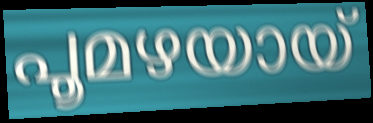
പൂമഴയായ്